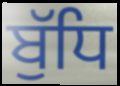
ਬੁੱਧਿ